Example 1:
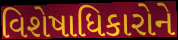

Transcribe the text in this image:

વિશેષાધિકારોને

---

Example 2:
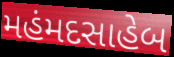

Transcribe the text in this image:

મહંમદસાહેબ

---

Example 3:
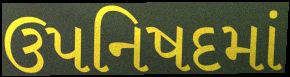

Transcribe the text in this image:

ઉપનિષદમાં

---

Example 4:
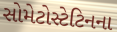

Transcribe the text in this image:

સોમેટોસ્ટેટિનના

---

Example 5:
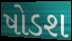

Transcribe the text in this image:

ષોડશ